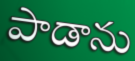
పాడాను